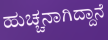
ಹುಚ್ಚನಾಗಿದ್ದಾನೆ